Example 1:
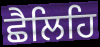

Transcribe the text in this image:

ਛੈਲਿਹਿ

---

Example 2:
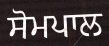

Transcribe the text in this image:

ਸੋਮਪਾਲ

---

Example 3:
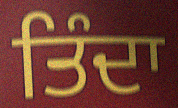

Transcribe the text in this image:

ਤਿੰਦਾ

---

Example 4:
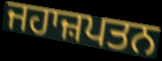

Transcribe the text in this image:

ਜਹਾਜ਼ਪਤਨ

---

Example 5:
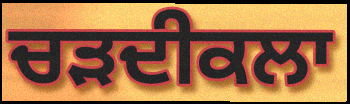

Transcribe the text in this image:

ਚੜਦੀਕਲਾ